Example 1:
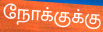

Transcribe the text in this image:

நோக்குக்கு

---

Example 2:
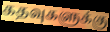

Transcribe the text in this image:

கதவுகளுக்கு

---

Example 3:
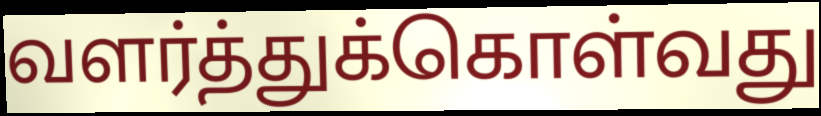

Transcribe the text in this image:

வளர்த்துக்கொள்வது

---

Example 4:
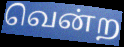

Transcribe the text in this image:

வென்ற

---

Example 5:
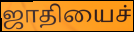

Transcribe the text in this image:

ஜாதியைச்